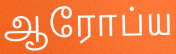
ஆரோப்ய